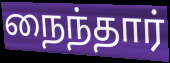
நைந்தார்